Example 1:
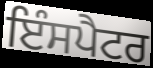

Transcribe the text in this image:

ਇੰਸਪੈਟਰ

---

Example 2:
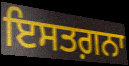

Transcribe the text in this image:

ਇਸਤਗ਼ਨਾ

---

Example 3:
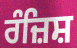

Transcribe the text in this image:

ਰੰਜ਼ਿਸ਼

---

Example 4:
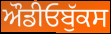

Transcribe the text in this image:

ਔਡੀਓਬੁੱਕਸ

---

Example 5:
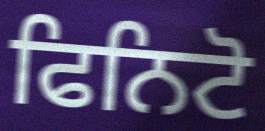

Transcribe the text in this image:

ਫਿਨਿਟੋ